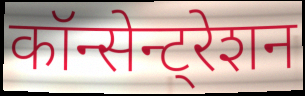
कॉन्सेन्ट्रेशन